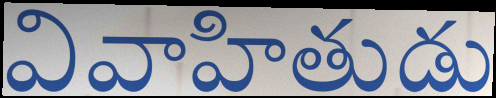
వివాహితుడు